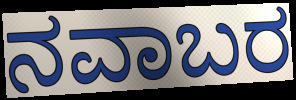
ನವಾಬರ